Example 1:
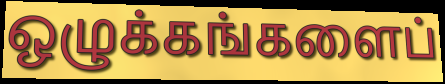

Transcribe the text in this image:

ஒழுக்கங்களைப்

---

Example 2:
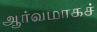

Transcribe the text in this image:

ஆர்வமாகச்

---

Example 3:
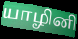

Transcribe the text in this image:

யாழினி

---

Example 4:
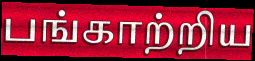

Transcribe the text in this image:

பங்காற்றிய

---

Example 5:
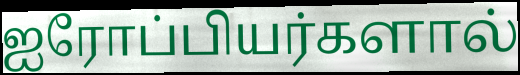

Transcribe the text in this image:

ஐரோப்பியர்களால்